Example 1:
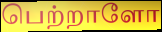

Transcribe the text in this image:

பெற்றாளோ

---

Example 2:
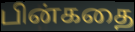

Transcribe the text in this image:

பின்கதை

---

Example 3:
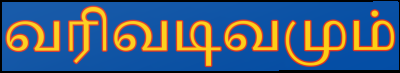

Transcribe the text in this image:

வரிவடிவமும்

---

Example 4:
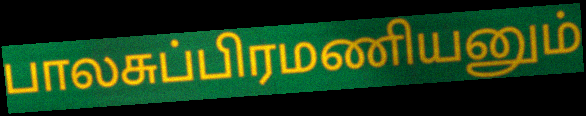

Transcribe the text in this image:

பாலசுப்பிரமணியனும்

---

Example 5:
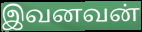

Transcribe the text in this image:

இவனவன்